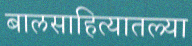
बालसाहित्यातल्या